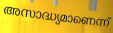
അസാദ്ധ്യമാണെന്ന്